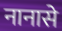
नानासे